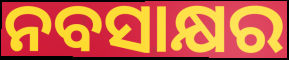
ନବସାକ୍ଷର